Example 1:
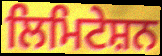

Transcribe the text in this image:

ਲਿਮਿਟੇਸ਼ਨ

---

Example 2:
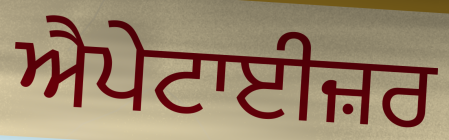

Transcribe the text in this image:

ਐਪੇਟਾਈਜ਼ਰ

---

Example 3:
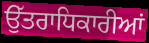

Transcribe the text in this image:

ਉੱਤਰਾਧਿਕਾਰੀਆਂ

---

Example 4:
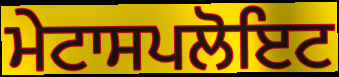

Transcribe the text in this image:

ਮੇਟਾਸਪਲੋਇਟ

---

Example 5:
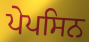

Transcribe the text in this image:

ਪੇਪਸਿਨ